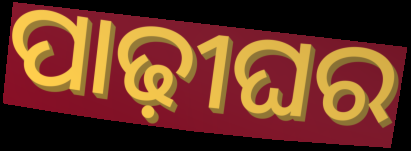
ପାଢ଼ୀଘର